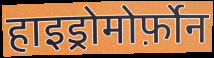
हाइड्रोमोर्फ़ोन